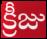
క్రీజు